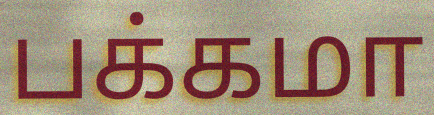
பக்கமா